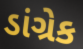
ડાંગ્રેક